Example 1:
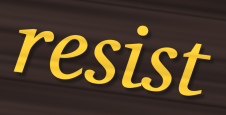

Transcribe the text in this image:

resist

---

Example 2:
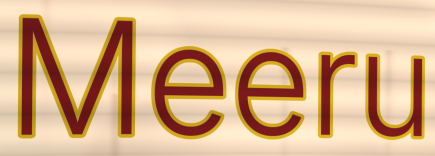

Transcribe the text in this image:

Meeru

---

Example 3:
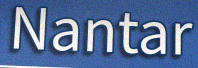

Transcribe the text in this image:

Nantar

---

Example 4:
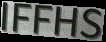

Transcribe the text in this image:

IFFHS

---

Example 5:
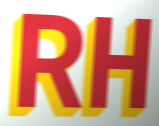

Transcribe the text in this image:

RH